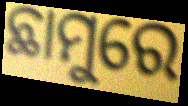
ଛାମୁରେ